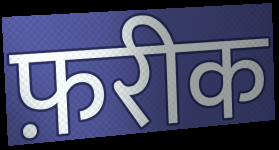
फ़रीक